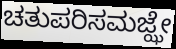
ಚತುಪರಿಸಮಜ್ಝೇ